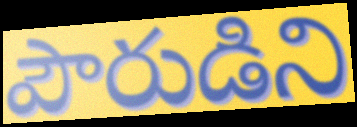
పౌరుడిని